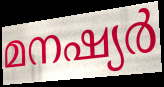
മനഷ്യർ